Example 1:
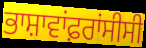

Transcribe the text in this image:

ਭਾਸ਼ਾਵਾਂਫ਼ਰਾਂਸੀਸੀ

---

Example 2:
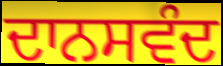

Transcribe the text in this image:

ਦਾਨਸਵੰਦ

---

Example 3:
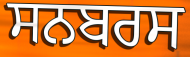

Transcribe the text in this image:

ਸਨਬਰਸ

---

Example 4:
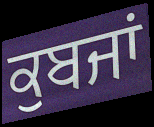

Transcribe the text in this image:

ਕੁਬਜਾਂ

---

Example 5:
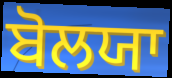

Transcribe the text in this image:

ਬੋਲਯਾ